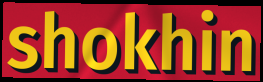
shokhin